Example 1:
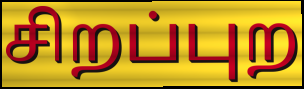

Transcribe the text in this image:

சிறப்புற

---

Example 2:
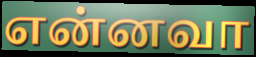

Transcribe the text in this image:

என்னவா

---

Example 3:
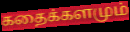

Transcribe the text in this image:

கதைக்களமும்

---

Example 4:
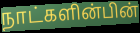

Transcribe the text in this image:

நாட்களின்பின்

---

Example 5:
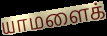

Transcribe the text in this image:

யாமளைக்